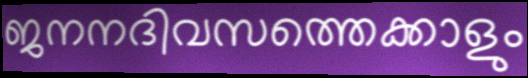
ജനനദിവസത്തെക്കാളും